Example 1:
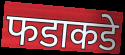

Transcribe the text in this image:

फडाकडे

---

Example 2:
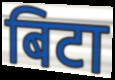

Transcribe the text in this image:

बिटा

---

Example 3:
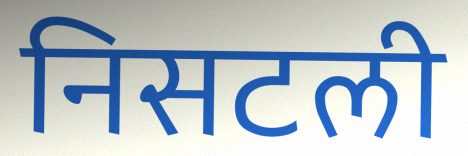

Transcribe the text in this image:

निसटली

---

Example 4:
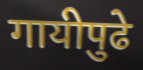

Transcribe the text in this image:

गायीपुढे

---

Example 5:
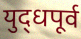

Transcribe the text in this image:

युद्धपूर्व